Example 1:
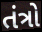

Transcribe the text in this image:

તંત્રો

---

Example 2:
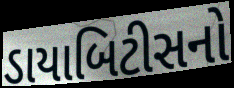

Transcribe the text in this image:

ડાયાબિટીસનો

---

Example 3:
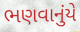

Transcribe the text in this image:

ભણવાનુંયે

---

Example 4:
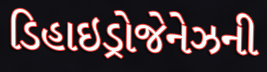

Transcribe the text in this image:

ડિહાઇડ્રોજેનેઝની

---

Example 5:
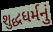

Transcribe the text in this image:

શુદ્ધધર્મનું